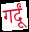
गर्दूं